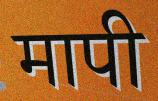
मापी